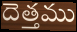
దెత్తము